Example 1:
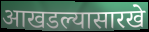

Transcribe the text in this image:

आखडल्यासारखे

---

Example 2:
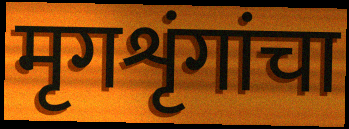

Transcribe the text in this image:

मृगशृंगांचा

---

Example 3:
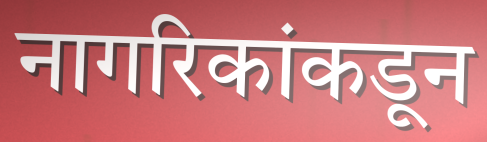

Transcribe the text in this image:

नागरिकांकडून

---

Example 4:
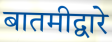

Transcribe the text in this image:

बातमीद्वारे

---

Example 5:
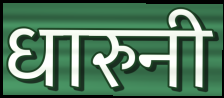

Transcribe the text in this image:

धारुनी